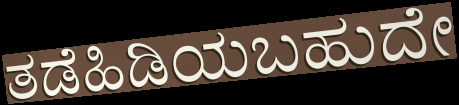
ತಡೆಹಿಡಿಯಬಹುದೇ